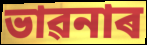
ভাৱনাৰ